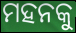
ମହନକୁ